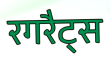
रगरैट्स